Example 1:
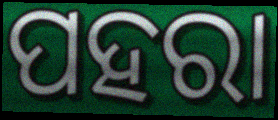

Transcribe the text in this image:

ପହରା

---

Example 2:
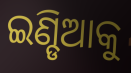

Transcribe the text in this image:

ଇଣ୍ଡିଆକୁ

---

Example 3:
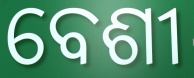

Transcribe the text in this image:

ବେଶୀ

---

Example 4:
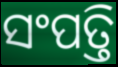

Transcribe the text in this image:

ସଂପତ୍ତି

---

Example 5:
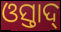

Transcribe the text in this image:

ଓସ୍ତାଦ୍